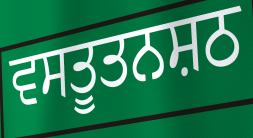
ਵਸਤੂਤਨਸ਼ਠ